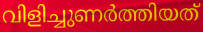
വിളിച്ചുണർത്തിയത്